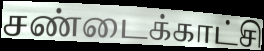
சண்டைக்காட்சி